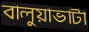
বালুয়াভাটা